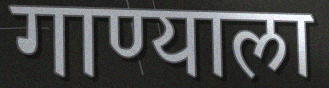
गाण्याला